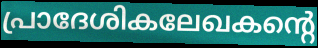
പ്രാദേശികലേഖകന്റെ